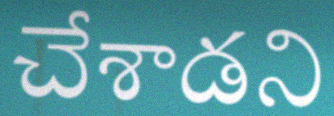
చేశాడని